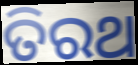
ତିରଥ